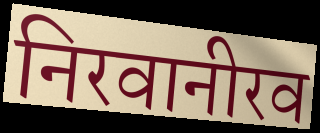
निरवानीरव